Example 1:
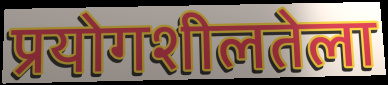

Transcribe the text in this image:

प्रयोगशीलतेला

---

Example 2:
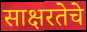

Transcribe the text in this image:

साक्षरतेचे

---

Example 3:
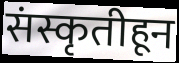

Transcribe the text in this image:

संस्कृतीहून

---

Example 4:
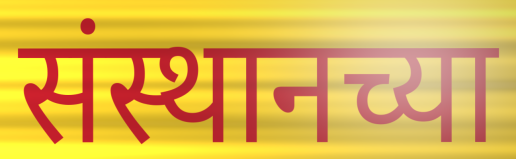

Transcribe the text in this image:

संस्थानच्या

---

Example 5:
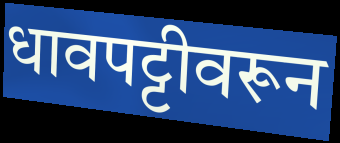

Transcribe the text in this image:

धावपट्टीवरून